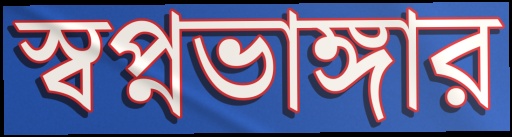
স্বপ্নভাঙ্গার